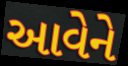
આવેને